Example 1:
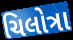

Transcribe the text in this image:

ચિલોત્રા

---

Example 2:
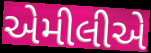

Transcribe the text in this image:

એમીલીએ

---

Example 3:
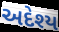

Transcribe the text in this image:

અદેશ્ય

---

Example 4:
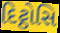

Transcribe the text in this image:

દિટ્ઠોસિ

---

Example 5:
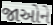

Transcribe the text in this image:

જાઓને